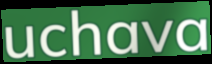
uchava